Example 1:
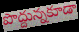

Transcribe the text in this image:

పొద్దున్నకూడా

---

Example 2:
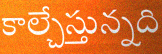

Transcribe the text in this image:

కాల్చేస్తున్నది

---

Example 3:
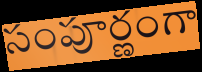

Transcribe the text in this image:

సంపూర్ణంగా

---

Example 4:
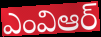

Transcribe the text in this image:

ఎంవిఆర్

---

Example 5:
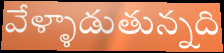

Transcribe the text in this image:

వేళ్ళాడుతున్నది